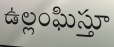
ఉల్లంఘిస్తూ